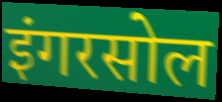
इंगरसोल